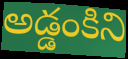
అడ్డంకిని